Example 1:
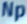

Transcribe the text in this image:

Np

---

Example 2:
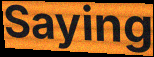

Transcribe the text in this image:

Saying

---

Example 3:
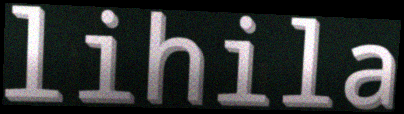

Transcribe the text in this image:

lihila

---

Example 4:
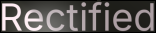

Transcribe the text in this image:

Rectified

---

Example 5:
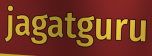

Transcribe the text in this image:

jagatguru